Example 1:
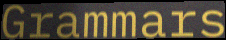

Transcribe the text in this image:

Grammars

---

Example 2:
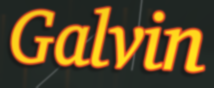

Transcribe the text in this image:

Galvin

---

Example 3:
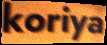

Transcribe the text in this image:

koriya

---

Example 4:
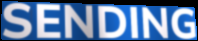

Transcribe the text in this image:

SENDING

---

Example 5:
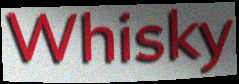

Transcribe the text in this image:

Whisky